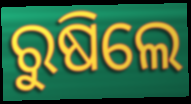
ରୁଷିଲେ